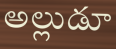
అల్లుడూ